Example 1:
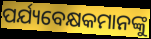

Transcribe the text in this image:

ପର୍ଯ୍ୟବେକ୍ଷକମାନଙ୍କୁ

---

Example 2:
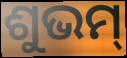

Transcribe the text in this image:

ଶୁଭମ୍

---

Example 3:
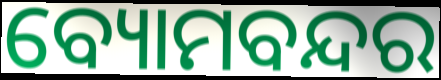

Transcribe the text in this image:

ବ୍ୟୋମବନ୍ଦର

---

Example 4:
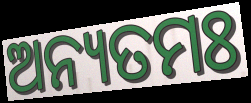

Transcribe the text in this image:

ଅନ୍ୟତମଃ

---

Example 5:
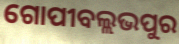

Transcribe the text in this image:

ଗୋପୀବଲ୍ଲଭପୁର